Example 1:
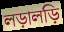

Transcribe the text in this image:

লড়ালড়ি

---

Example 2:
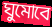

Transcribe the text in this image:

ঘুমোবে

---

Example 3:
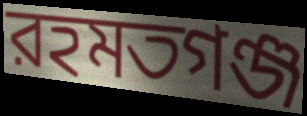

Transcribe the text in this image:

রহমতগঞ্জ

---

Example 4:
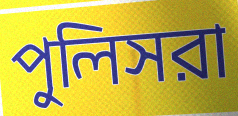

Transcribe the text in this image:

পুলিসরা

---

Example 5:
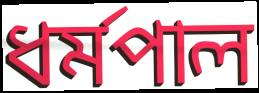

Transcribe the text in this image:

ধর্মপাল